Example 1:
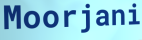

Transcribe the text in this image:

Moorjani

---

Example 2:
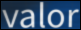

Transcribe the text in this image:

valor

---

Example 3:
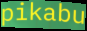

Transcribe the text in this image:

pikabu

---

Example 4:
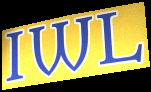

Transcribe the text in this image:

IWL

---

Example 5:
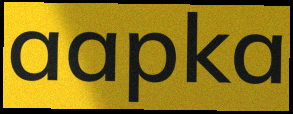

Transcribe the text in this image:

aapka